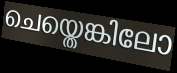
ചെയ്തെങ്കിലോ